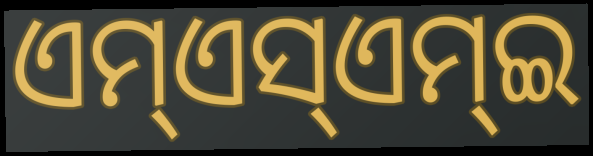
ଏମ୍ଏସ୍ଏମ୍ଇ